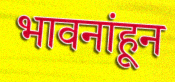
भावनांहून